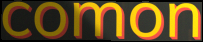
comon